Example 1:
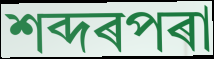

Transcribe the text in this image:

শব্দৰপৰা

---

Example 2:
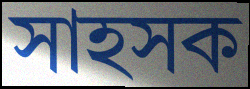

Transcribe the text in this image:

সাহসক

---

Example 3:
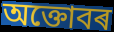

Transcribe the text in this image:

অক্তোবৰ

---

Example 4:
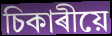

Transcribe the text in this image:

চিকাৰীয়ে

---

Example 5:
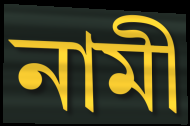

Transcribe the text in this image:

নামী